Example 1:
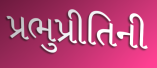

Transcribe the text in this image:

પ્રભુપ્રીતિની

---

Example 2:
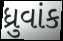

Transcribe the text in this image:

ધ્રુવાંક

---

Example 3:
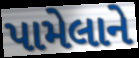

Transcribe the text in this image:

પામેલાને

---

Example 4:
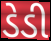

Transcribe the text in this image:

ડેડી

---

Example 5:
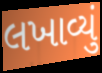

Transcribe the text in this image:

લખાવ્યું